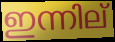
ഇന്നില്